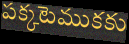
పక్కటెముకకు